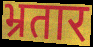
भ्रतार